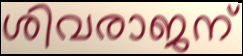
ശിവരാജന്